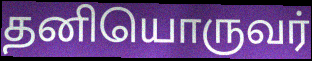
தனியொருவர்